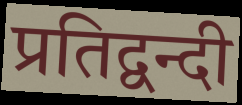
प्रतिद्वन्दी